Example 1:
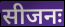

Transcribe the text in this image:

सीजनः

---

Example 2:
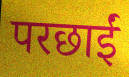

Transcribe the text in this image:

परछाईं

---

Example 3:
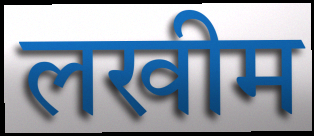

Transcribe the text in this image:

लखीम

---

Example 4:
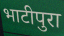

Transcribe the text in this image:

भाटीपुरा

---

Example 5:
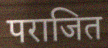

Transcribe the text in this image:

पराजित